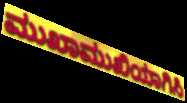
ಮುಖಾಮುಖಿಯಾಗಿಸಿ